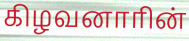
கிழவனாரின்